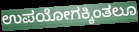
ಉಪಯೋಗಕ್ಕಿಂತಲೂ